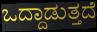
ಒದ್ದಾಡುತ್ತದೆ